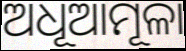
ଅଧୂଆମୂଳା